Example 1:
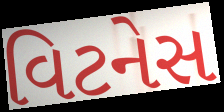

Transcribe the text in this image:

વિટનેસ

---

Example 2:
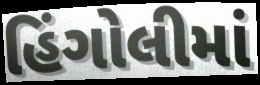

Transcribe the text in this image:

હિંગોલીમાં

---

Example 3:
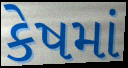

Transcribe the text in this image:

કેષમાં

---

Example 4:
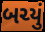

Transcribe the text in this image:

બચ્યું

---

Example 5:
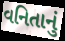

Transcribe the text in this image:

વનિતાનું